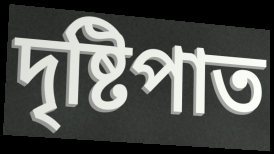
দৃষ্টিপাত